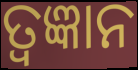
ତ୍ୱଜ୍ଞାନ